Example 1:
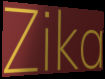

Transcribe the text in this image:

Zika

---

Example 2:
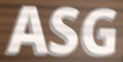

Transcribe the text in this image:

ASG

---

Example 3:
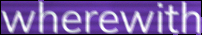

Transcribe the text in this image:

wherewith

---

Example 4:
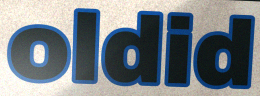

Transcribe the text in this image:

oldid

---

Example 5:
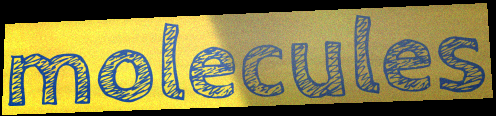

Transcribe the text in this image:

molecules